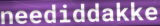
neediddakke